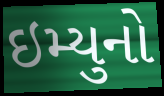
ઇમ્યુનો